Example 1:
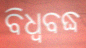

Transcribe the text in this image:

ବିଧ୍ଵବଦ୍ଧ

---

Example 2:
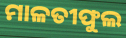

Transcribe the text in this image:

ମାଳତୀଫୁଲ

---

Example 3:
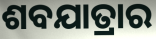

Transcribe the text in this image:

ଶବଯାତ୍ରାର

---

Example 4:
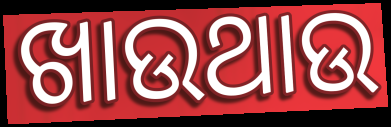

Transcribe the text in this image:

ଖାଉଥାଉ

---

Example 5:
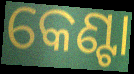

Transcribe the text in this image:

କେଣ୍ଟା